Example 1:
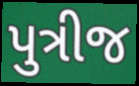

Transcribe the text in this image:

પુત્રીજ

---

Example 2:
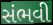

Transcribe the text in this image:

સંભવી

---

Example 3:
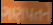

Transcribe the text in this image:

ગણપતને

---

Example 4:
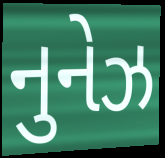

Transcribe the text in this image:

નુનેઝ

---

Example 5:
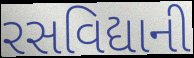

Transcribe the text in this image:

રસવિદ્યાની